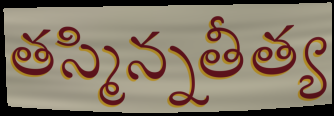
తస్మిన్నతీత్య